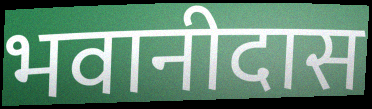
भवानीदास